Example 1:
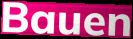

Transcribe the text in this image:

Bauen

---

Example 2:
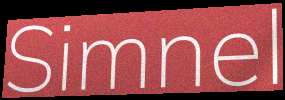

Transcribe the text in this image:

Simnel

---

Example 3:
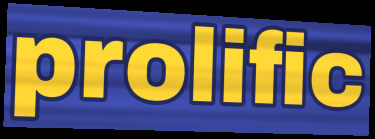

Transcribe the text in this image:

prolific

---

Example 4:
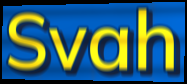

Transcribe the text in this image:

Svah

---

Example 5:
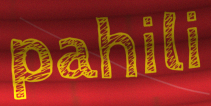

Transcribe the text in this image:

pahili